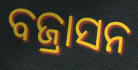
ବଜ୍ରାସନ